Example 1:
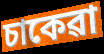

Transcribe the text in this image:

চাকেৱা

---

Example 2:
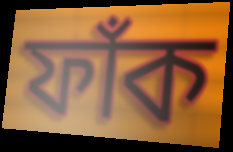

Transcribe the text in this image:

ফাঁক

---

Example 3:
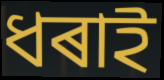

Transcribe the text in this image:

ধৰাই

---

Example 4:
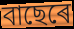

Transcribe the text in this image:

বাছেৰে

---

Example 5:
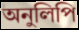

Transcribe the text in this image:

অনুলিপি